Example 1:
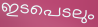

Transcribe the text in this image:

ഇടപെടലും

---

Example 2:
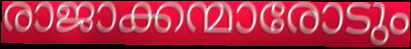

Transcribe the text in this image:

രാജാക്കന്മാരോടും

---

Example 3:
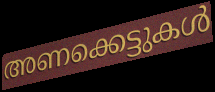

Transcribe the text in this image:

അണക്കെട്ടുകൾ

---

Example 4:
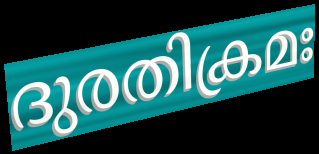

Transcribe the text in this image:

ദുരതിക്രമഃ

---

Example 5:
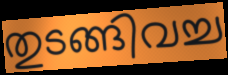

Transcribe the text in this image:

തുടങ്ങിവച്ച